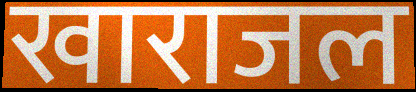
खाराजल